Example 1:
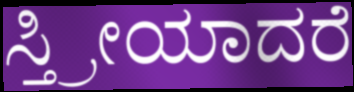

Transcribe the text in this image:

ಸ್ತ್ರೀಯಾದರೆ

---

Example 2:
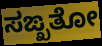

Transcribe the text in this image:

ಸಙ್ಖತೋ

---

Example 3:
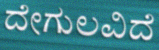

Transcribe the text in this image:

ದೇಗುಲವಿದೆ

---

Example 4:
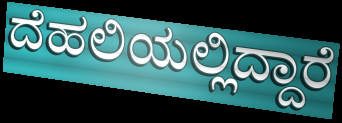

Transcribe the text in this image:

ದೆಹಲಿಯಲ್ಲಿದ್ದಾರೆ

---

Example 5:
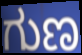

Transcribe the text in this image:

ಗುಣ